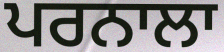
ਪਰਨਾਲਾ